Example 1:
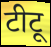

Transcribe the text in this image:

टीटू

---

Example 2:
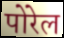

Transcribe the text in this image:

पोरेल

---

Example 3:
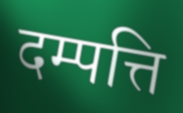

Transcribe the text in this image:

दम्पत्ति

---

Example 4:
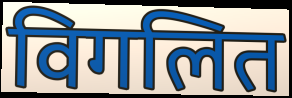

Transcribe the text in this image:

विगलित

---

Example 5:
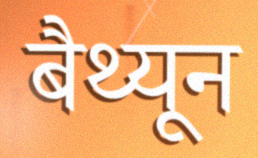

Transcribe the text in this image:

बैथ्यून